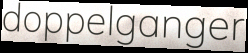
doppelganger